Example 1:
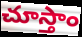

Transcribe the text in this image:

చూస్తాం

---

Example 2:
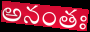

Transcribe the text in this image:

అనంతః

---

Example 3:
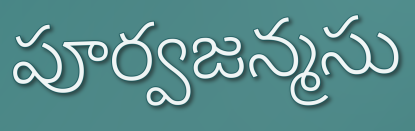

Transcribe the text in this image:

పూర్వజన్మసు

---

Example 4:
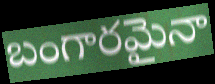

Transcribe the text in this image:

బంగారమైనా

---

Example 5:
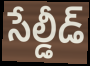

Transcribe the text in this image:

సేల్డీడ్